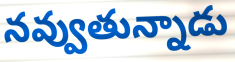
నవ్వుతున్నాడు